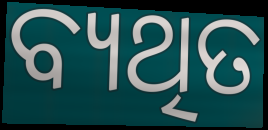
ବ୍ୟଥିତ